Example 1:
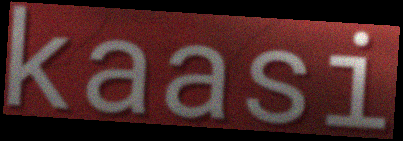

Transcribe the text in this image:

kaasi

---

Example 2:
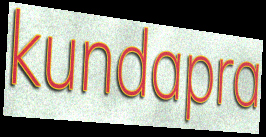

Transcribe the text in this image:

kundapra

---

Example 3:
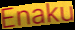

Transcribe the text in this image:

Enaku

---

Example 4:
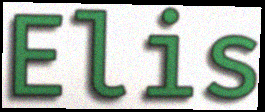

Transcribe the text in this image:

Elis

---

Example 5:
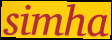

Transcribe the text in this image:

simha